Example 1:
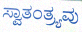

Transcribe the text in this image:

ಸ್ವಾತಂತ್ರ್ಯವು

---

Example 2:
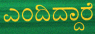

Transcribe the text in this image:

ಎಂದಿದ್ದಾರೆ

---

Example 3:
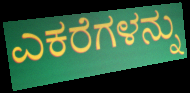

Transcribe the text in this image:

ಎಕರೆಗಳನ್ನು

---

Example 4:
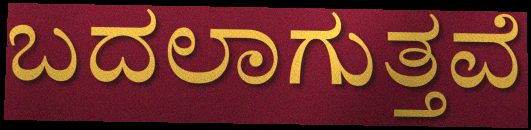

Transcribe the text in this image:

ಬದಲಾಗುತ್ತವೆ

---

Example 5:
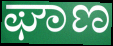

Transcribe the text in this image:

ಘಾಣ